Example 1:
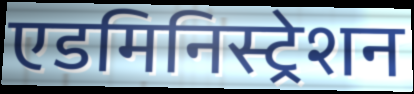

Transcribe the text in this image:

एडमिनिस्ट्रेशन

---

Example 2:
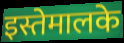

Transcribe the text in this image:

इस्तेमालके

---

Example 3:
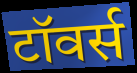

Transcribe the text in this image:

टॉवर्स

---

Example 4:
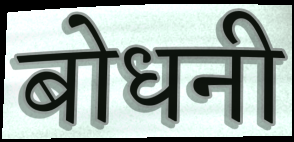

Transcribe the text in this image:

बोधनी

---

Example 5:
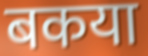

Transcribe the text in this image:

बकया